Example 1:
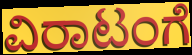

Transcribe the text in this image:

ವಿರಾಟಂಗೆ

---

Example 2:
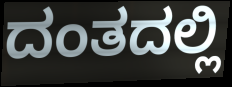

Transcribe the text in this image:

ದಂತದಲ್ಲಿ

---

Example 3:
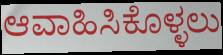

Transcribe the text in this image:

ಆವಾಹಿಸಿಕೊಳ್ಳಲು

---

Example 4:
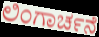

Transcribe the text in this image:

ಲಿಂಗಾರ್ಚನೆ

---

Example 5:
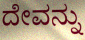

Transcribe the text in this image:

ದೇವನ್ನು